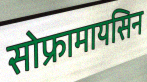
सोफ्रामायसिन